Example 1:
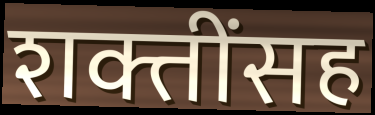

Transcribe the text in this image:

शक्तींसह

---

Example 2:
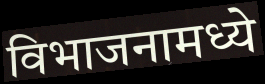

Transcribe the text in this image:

विभाजनामध्ये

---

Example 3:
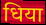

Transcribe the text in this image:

धिया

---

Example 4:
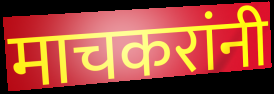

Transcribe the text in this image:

माचकरांनी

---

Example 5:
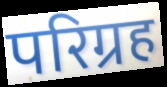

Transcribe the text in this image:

परिग्रह